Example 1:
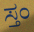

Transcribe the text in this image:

ಸ್ತಂ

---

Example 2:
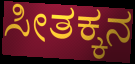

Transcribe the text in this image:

ಸೀತಕ್ಕನ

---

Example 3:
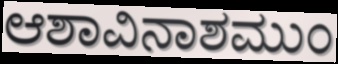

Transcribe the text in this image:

ಆಶಾವಿನಾಶಮುಂ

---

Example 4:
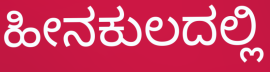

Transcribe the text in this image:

ಹೀನಕುಲದಲ್ಲಿ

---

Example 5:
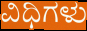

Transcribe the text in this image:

ವಿಧಿಗಳು